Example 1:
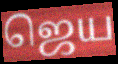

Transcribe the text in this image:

ஜெய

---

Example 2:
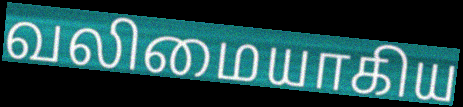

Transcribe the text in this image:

வலிமையாகிய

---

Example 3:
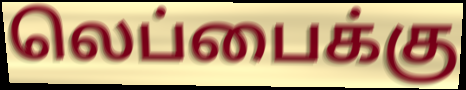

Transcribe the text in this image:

லெப்பைக்கு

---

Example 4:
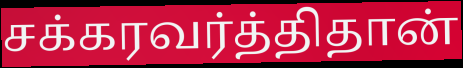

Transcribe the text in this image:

சக்கரவர்த்திதான்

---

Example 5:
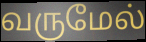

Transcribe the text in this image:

வருமேல்